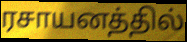
ரசாயனத்தில்